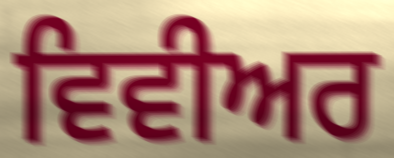
ਵਿਵੀਅਰ